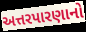
અત્તરપારણાનો